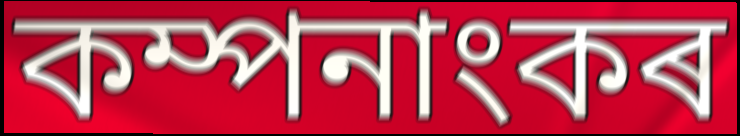
কম্পনাংকৰ